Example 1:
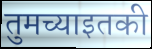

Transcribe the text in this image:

तुमच्याइतकी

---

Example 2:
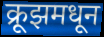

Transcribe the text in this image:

क्रूझमधून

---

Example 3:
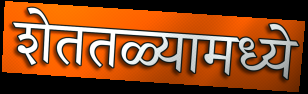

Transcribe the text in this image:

शेततळ्यामध्ये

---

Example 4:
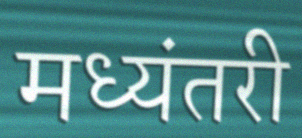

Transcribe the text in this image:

मध्यंतरी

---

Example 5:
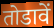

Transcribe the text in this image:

तोडावें